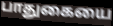
பாதுகையை